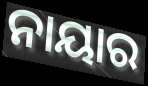
ନାୟାର